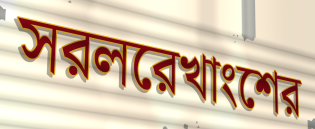
সরলরেখাংশের